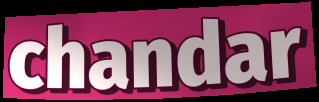
chandar